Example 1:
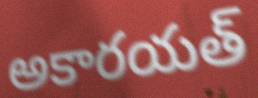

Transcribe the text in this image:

అకారయత్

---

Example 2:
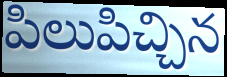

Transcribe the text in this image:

పిలుపిచ్చిన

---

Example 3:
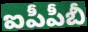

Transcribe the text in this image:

ఐపీపీబీ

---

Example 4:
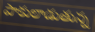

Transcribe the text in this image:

పాకులాడుతున్న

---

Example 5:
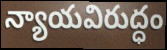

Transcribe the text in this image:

న్యాయవిరుద్ధం